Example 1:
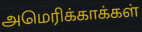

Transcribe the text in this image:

அமெரிக்காக்கள்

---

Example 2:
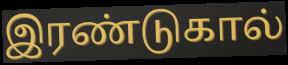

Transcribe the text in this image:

இரண்டுகால்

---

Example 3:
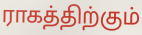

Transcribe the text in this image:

ராகத்திற்கும்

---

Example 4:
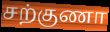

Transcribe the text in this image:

சற்குணா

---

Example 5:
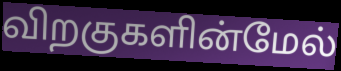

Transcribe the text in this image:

விறகுகளின்மேல்